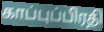
காப்புப்பிரதி